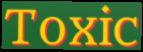
Toxic